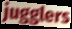
jugglers